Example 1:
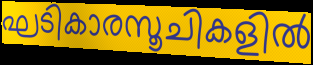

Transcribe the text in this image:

ഘടികാരസൂചികളിൽ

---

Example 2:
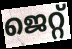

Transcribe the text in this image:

ജെറ്റ്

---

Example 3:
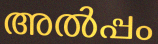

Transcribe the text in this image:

അൽപ്പം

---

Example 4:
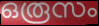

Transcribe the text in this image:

ഒരൂസം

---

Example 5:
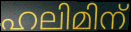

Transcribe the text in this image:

ഹലിമിന്